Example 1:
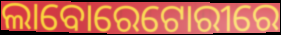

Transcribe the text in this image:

ଲାବୋରେଟୋରୀରେ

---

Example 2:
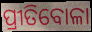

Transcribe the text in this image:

ପ୍ରୀତିବୋଳା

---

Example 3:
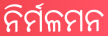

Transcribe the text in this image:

ନିର୍ମଳମନ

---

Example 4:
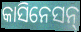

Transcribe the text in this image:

କାସିନେସନ୍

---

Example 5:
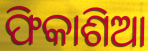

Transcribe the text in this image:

ଫିକାଶିଆ